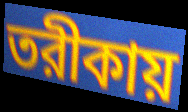
তরীকায়